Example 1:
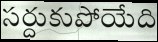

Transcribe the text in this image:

సర్దుకుపోయేది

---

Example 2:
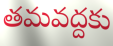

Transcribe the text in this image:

తమవద్దకు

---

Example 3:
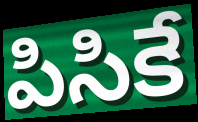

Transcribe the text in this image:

పిసికే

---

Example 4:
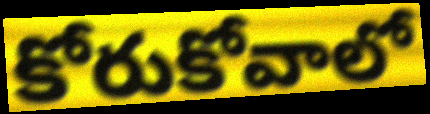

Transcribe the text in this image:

కోరుకోవాలో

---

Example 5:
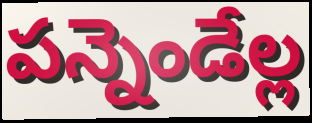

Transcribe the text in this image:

పన్నెండేల్ల